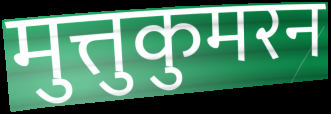
मुत्तुकुमरन